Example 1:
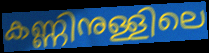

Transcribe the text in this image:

കണ്ണിനുള്ളിലെ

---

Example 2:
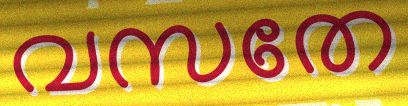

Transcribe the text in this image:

വസതേ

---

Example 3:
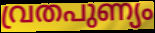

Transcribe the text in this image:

വ്രതപുണ്യം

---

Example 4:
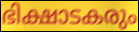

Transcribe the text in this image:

ഭിക്ഷാടകരും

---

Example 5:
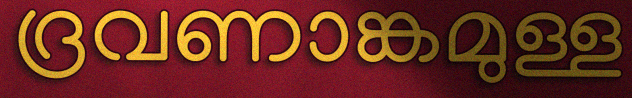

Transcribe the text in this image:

ദ്രവണാങ്കമുള്ള